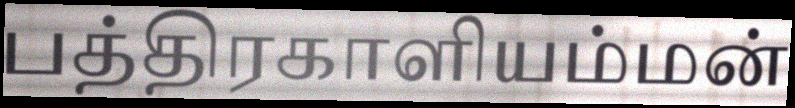
பத்திரகாளியம்மன்